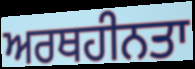
ਅਰਥਹੀਨਤਾ